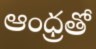
ఆంధ్రతో